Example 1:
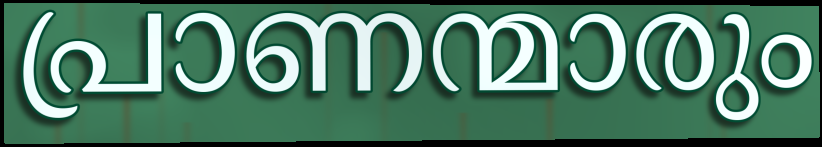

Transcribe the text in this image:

പ്രാണന്മാരും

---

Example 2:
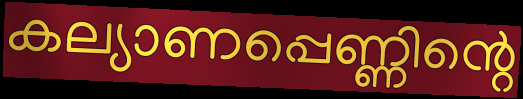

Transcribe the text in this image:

കല്യാണപ്പെണ്ണിന്റെ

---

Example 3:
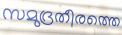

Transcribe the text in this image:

സമുദ്രതീരത്തെ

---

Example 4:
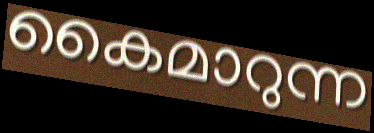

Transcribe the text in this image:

കൈമാറുന്ന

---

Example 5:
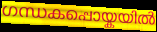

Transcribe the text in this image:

ഗന്ധകപ്പൊയ്കയിൽ